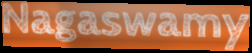
Nagaswamy